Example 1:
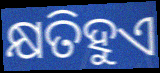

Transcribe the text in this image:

କ୍ଷତିହୁଏ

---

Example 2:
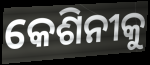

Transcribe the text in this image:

କେଶିନୀକୁ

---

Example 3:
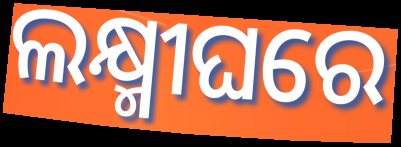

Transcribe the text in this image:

ଲକ୍ଷ୍ମୀଘରେ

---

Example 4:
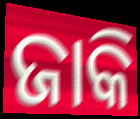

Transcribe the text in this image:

ଜାକି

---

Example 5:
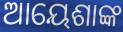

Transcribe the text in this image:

ଆୟେଶାଙ୍କ